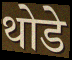
थोडे